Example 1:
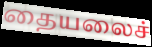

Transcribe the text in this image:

தையலைச்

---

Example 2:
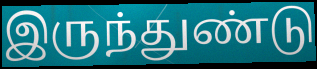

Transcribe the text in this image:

இருந்துண்டு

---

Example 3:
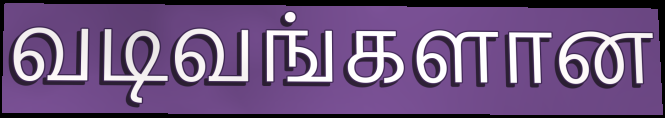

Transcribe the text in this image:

வடிவங்களான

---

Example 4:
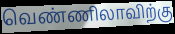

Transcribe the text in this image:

வெண்ணிலாவிற்கு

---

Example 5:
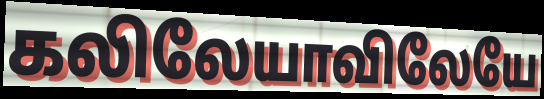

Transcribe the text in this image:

கலிலேயாவிலேயே